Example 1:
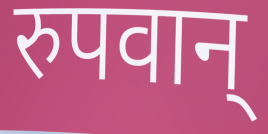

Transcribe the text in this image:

रुपवान्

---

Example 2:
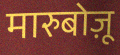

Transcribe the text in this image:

मारुबोज़ू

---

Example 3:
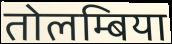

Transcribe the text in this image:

तोलम्बिया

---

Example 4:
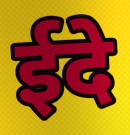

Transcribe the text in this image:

ईदे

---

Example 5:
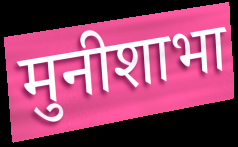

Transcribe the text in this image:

मुनीशाभा